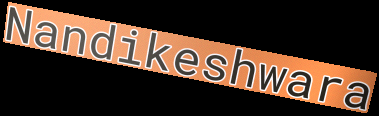
Nandikeshwara